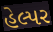
હેલ્પર